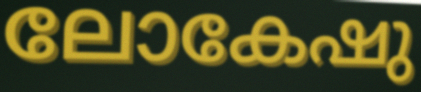
ലോകേഷു